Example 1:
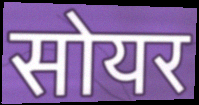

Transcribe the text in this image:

सोयर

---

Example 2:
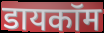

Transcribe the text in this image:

डायकॉम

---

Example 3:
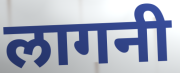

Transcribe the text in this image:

लागनी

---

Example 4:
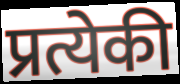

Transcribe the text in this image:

प्रत्येकी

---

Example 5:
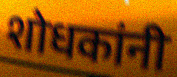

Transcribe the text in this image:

शोधकांनी